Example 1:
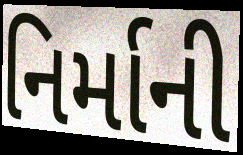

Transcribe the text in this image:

નિર્માની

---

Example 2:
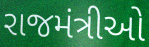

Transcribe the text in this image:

રાજમંત્રીઓ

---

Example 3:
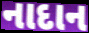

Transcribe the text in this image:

નાદાન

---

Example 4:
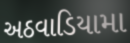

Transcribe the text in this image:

અઠવાડિયામા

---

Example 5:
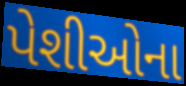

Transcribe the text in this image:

પેશીઓના